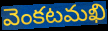
వెంకటమఖి